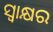
ସ୍ବାକ୍ଷର